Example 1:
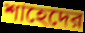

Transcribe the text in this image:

শাহেদের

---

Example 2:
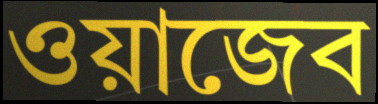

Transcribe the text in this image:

ওয়াজেব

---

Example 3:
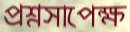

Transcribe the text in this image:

প্রশ্নসাপেক্ষ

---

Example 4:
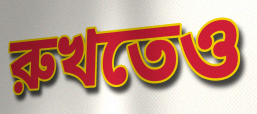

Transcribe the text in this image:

রুখতেও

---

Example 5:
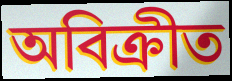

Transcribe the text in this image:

অবিক্রীত